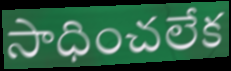
సాధించలేక